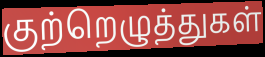
குற்றெழுத்துகள்